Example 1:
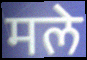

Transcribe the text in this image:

मले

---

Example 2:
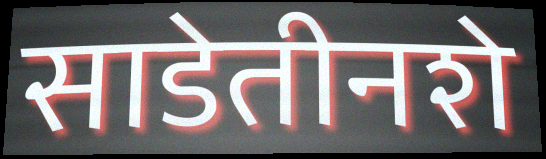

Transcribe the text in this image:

साडेतीनशे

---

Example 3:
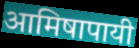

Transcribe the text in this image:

आमिषापायी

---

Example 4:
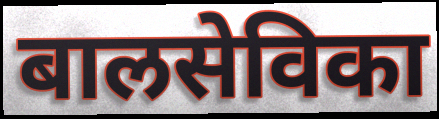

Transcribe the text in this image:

बालसेविका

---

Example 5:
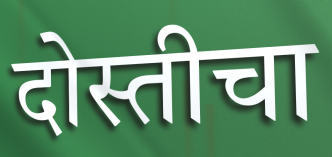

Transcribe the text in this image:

दोस्तीचा